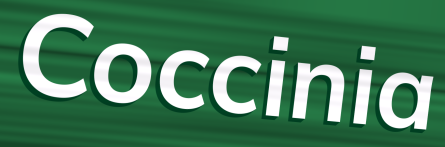
Coccinia